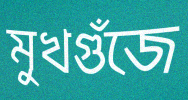
মুখগুঁজে